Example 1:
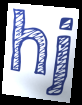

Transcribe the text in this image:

hj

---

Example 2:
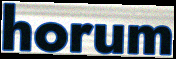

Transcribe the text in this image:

horum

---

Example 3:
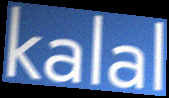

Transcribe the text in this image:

kalal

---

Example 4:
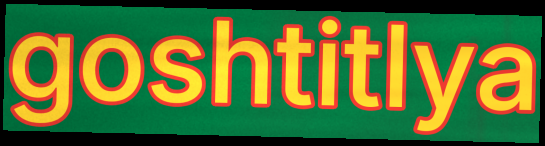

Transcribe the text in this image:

goshtitlya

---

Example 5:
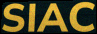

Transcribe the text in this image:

SIAC